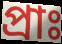
প্রাঃ